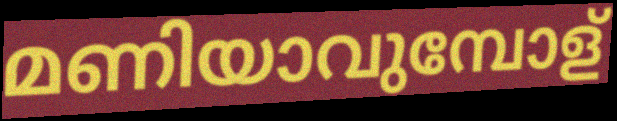
മണിയാവുമ്പോള്